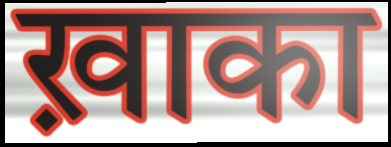
ख़ाका